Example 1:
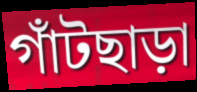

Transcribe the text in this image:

গাঁটছাড়া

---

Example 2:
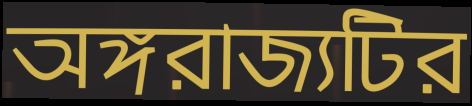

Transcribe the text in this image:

অঙ্গরাজ্যটির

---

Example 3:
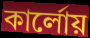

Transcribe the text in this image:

কার্লোয়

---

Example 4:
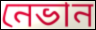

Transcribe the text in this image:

নেভান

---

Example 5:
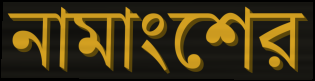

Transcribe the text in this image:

নামাংশের